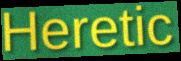
Heretic